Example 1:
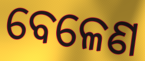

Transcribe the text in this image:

ବେଳେଣ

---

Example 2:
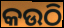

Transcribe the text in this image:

କଉଠି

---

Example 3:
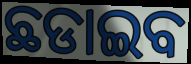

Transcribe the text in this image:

ଛଡାଇବ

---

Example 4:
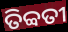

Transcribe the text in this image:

ତିବ୍ବତୀ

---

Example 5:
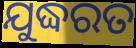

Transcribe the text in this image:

ଯୁଦ୍ଧରତ